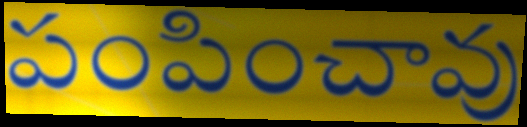
పంపించావు